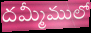
దమ్మీములో